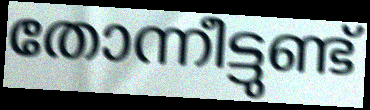
തോന്നീട്ടുണ്ട്